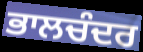
ਭਾਲਚੰਦਰ